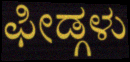
ಫೀಡ್ಗಳು